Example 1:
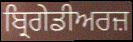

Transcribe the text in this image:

ਬ੍ਰਿਗੇਡੀਅਰਜ਼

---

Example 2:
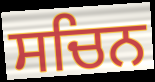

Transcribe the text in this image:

ਸਚਿਨ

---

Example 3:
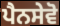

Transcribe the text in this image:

ਪੈਨਸੇਵੋ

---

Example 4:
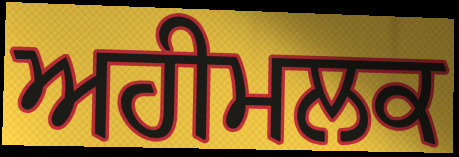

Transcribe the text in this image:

ਅਹੀਮਲਕ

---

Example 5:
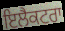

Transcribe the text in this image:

ਇਲੈਕਟਰਾ